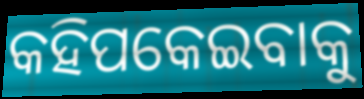
କହିପକେଇବାକୁ